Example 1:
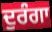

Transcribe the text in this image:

ਦੁਰੰਗਾ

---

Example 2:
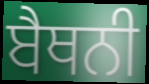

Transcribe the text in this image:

ਬੈਥਨੀ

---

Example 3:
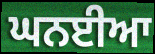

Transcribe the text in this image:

ਘਨਈਆ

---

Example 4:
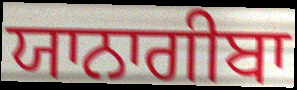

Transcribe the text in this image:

ਯਾਨਾਗੀਬਾ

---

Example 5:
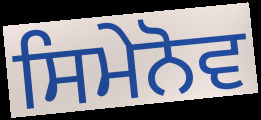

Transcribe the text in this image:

ਸਿਮੇਨੋਵ